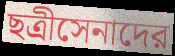
ছত্রীসেনাদের